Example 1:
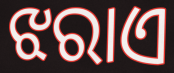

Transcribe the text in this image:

ଝରାଏ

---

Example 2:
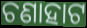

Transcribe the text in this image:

ଚଣାହାଟ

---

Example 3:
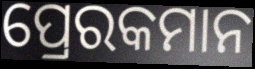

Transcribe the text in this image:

ପ୍ରେରକମାନ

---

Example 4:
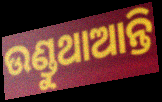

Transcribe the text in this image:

ଉଣ୍ଡୁଥାଆନ୍ତି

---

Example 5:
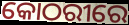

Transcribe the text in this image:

କୋଠରୀରେ